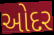
ઓદર